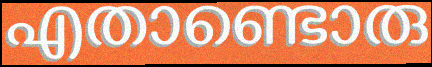
എതാണ്ടൊരു